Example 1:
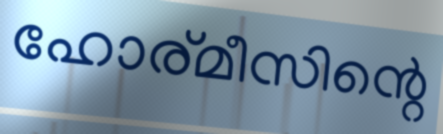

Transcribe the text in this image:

ഹോര്മീസിന്റെ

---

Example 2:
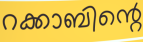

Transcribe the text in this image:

റക്കാബിന്റെ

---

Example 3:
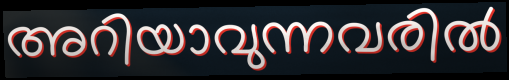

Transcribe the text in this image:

അറിയാവുന്നവരിൽ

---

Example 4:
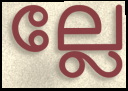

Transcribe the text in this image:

ല്ലേ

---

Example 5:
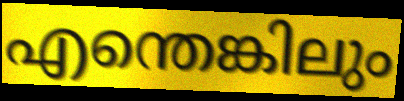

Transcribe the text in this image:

എന്തെങ്കിലും